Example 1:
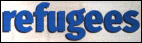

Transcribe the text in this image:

refugees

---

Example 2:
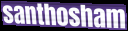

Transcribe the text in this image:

santhosham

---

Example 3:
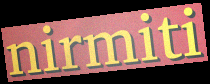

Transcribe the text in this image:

nirmiti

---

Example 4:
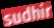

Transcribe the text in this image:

sudhir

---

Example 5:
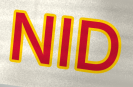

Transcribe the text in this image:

NID